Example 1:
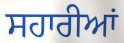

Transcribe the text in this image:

ਸਹਾਰੀਆਂ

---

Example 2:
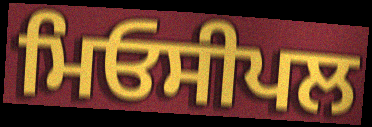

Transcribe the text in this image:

ਮਿਓਸੀਪਲ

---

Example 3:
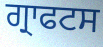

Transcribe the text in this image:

ਗ੍ਰਾਫਟਸ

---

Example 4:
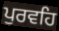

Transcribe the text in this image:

ਪੁਰਵਹਿ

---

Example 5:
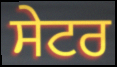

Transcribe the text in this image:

ਸੇਟਰ